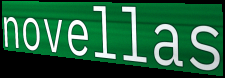
novellas